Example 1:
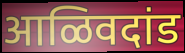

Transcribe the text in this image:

आळिवदांड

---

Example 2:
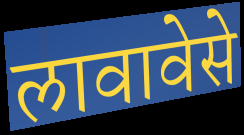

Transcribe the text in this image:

लावावेसे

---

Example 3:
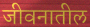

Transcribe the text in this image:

जीवनातील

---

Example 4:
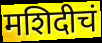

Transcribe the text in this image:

मशिदीचं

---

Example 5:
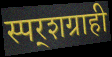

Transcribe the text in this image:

स्पर्शग्राही